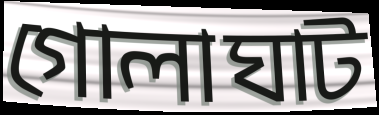
গোলাঘাট